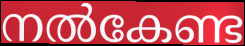
നൽകേണ്ട